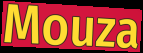
Mouza